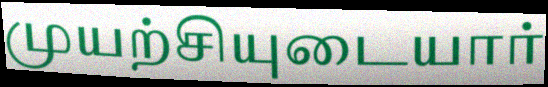
முயற்சியுடையார்